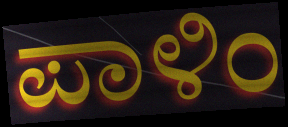
ಪಾಳಿಂ